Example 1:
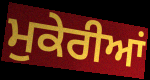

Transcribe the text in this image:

ਮੁਕੇਰੀਆਂ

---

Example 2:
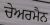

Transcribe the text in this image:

ਚੇਅਰਮੈਨ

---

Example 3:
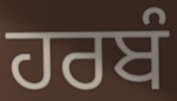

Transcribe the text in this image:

ਹਰਬੰ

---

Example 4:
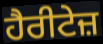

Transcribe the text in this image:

ਹੈਰੀਟੇਜ਼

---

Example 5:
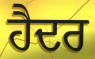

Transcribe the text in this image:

ਹੈਦਰ